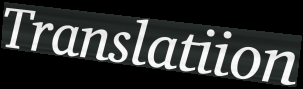
Translatiion